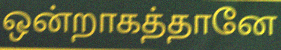
ஒன்றாகத்தானே